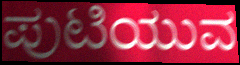
ಪುಟಿಯುವ